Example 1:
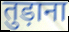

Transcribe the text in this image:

तुड़ाना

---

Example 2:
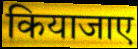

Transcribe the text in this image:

कियाजाए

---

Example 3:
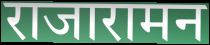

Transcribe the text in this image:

राजारामन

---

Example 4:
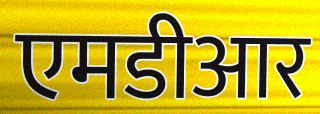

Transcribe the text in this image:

एमडीआर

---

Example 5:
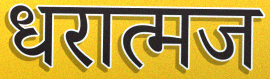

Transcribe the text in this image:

धरात्मज